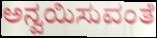
ಅನ್ವಯಿಸುವಂತೆ